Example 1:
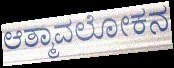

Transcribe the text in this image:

ಆತ್ಮಾವಲೋಕನ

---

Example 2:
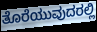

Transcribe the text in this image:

ತೊರೆಯುವುದರಲ್ಲಿ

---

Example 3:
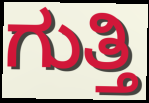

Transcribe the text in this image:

ಗುತ್ತಿ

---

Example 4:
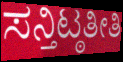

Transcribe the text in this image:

ಸನ್ತಿಟ್ಠತೀತಿ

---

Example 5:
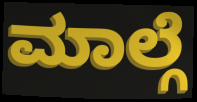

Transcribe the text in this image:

ಮಾಲ್ಗೆ